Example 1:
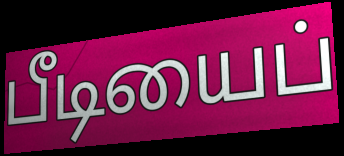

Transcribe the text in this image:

பீடியைப்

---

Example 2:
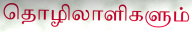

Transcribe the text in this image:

தொழிலாளிகளும்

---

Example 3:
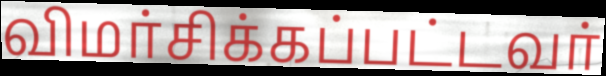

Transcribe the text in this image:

விமர்சிக்கப்பட்டவர்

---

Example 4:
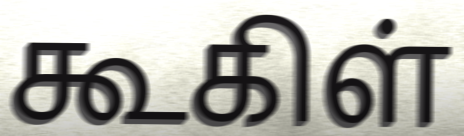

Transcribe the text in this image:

கூகிள்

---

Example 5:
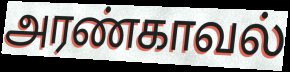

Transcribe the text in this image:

அரண்காவல்